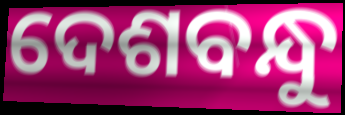
ଦେଶବନ୍ଧୁ